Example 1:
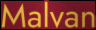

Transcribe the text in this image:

Malvan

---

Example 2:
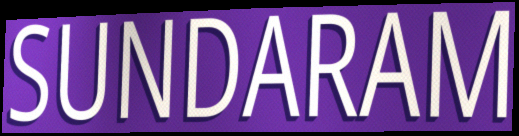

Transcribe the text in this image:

SUNDARAM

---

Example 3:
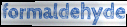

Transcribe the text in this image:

formaldehyde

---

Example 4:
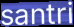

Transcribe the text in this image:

santri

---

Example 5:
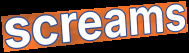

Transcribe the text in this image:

screams